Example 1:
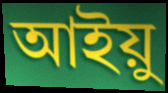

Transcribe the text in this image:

আইয়ু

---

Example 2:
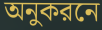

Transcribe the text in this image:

অনুকরনে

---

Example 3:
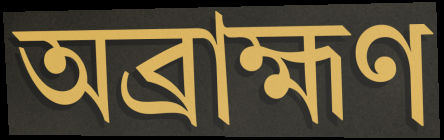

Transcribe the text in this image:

অব্রাহ্মণ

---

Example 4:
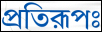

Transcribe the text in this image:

প্রতিরূপঃ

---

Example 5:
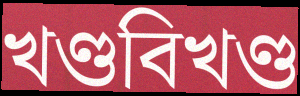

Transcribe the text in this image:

খণ্ডবিখণ্ড